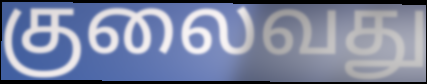
குலைவது